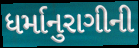
ધર્માનુરાગીની